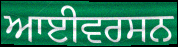
ਆਈਵਰਸਨ